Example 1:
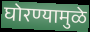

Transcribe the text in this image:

घोरण्यामुळे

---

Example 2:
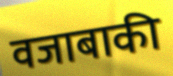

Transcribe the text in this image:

वजाबाकी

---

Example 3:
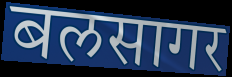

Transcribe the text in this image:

बलसागर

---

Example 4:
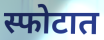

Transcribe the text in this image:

स्फोटात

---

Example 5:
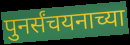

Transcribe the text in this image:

पुनर्संचयनाच्या